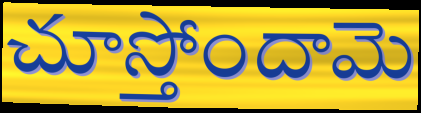
చూస్తోందామె